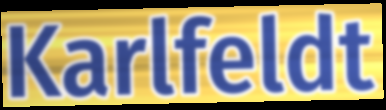
Karlfeldt